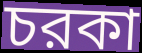
চরকা